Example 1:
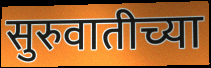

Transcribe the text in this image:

सुरुवातीच्या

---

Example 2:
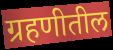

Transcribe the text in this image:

ग्रहणीतील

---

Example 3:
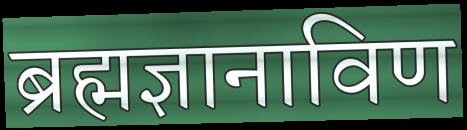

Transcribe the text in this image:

ब्रह्मज्ञानाविण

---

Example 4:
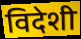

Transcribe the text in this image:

विदेशी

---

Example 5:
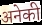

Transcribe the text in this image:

अनेकी